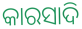
କାରସାଦି